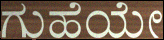
ಗುಹೆಯೇ